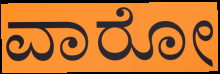
ವಾರೋ